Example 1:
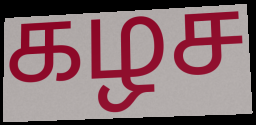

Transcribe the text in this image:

கழச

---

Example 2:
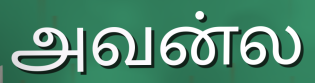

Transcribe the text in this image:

அவன்ல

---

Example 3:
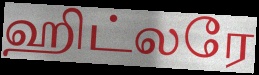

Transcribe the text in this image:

ஹிட்லரே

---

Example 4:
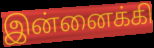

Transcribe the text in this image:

இன்னைக்கி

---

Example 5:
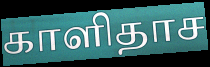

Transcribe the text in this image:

காளிதாச